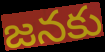
జనకు